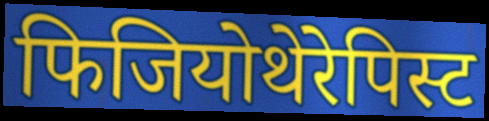
फिजियोथेरेपिस्ट